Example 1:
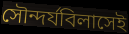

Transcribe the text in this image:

সৌন্দর্যবিলাসেই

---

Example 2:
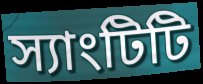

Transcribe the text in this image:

স্যাংটিটি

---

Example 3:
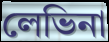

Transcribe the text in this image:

লেভিনা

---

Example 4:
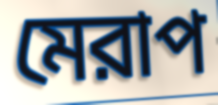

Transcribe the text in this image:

মেরাপ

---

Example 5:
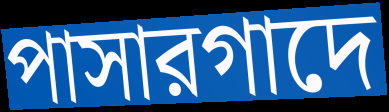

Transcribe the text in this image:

পাসারগাদে